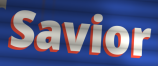
Savior